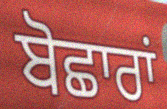
ਬੋਛਾਰਾਂ